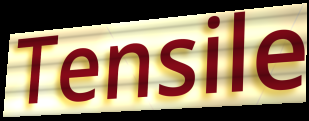
Tensile